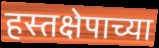
हस्तक्षेपाच्या